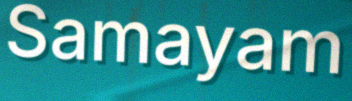
Samayam